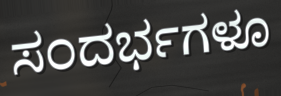
ಸಂದರ್ಭಗಳೂ